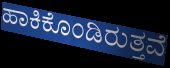
ಹಾಕಿಕೊಂಡಿರುತ್ತವೆ